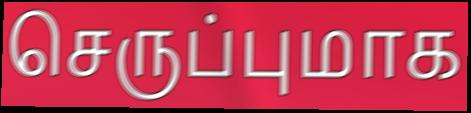
செருப்புமாக